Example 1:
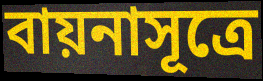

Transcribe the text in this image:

বায়নাসূত্রে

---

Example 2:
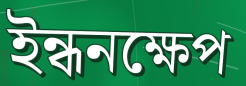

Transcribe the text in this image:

ইন্ধনক্ষেপ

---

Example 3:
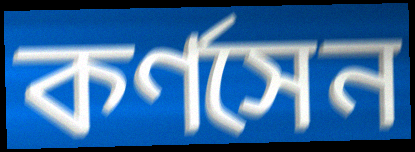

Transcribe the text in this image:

কর্ণসেন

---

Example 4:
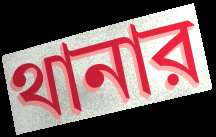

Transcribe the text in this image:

থানার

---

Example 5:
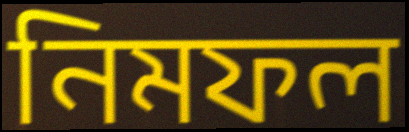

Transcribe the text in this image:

নিমফল